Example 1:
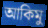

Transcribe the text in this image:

আকিমু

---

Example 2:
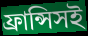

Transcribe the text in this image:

ফ্রান্সিসই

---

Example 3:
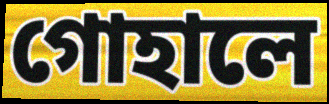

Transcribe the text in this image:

গোহালে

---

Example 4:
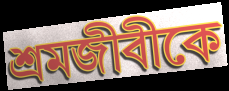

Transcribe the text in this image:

শ্রমজীবীকে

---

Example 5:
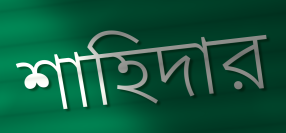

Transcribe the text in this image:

শাহিদার